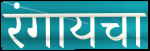
रंगायचा